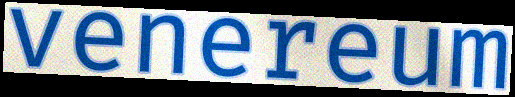
venereum